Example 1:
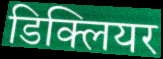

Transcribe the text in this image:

डिक्लियर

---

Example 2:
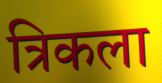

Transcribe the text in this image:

त्रिकला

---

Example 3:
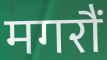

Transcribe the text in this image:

मगरौं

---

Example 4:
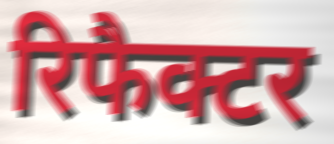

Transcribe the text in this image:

रिफैक्टर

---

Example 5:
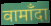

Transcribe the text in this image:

वामाँदा